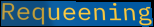
Requeening